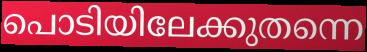
പൊടിയിലേക്കുതന്നെ